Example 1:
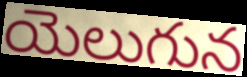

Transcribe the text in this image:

యెలుగున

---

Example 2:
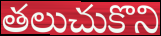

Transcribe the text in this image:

తలుచుకొని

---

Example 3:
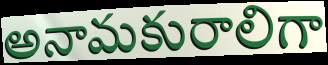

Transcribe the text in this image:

అనామకురాలిగా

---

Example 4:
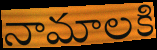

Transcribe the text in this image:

నామాలకి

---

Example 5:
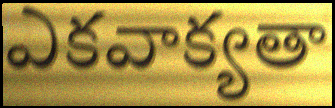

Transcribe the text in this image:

ఎకవాక్యతా